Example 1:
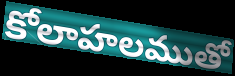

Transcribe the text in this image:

కోలాహలముతో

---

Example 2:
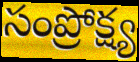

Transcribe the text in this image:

సంప్రోక్ష్య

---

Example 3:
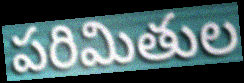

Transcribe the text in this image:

పరిమితుల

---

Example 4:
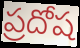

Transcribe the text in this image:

ప్రదోష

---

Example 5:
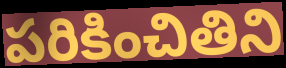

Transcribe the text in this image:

పరికించితిని